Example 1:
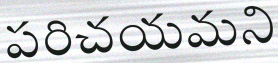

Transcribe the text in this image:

పరిచయమని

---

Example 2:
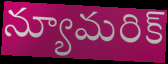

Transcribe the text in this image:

న్యూమరిక్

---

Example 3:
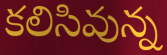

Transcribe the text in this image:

కలిసివున్న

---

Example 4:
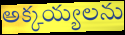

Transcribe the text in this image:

అక్కయ్యలను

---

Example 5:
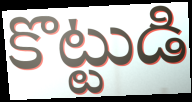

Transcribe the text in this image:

కొట్టుడి